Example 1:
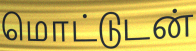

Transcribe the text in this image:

மொட்டுடன்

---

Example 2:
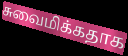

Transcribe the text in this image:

சுவைமிக்கதாக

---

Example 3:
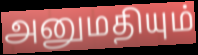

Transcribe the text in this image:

அனுமதியும்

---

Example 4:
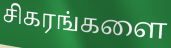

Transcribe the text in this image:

சிகரங்களை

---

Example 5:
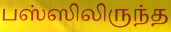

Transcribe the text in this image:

பஸ்ஸிலிருந்த